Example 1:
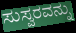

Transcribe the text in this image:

ಸುಸ್ವರವನ್ನು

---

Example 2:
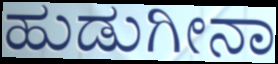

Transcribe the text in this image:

ಹುಡುಗೀನಾ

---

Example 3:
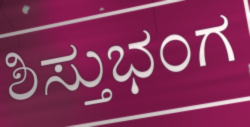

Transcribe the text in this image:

ಶಿಸ್ತುಭಂಗ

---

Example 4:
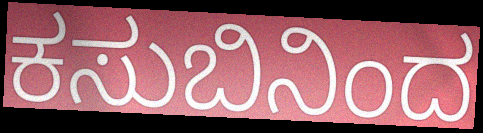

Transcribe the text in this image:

ಕಸುಬಿನಿಂದ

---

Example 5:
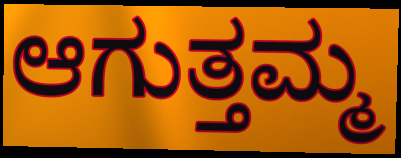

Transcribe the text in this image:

ಆಗುತ್ತಮ್ಮ